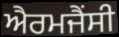
ਐਰਮਜੈਂਸੀ